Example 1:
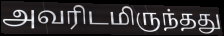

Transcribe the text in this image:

அவரிடமிருந்தது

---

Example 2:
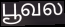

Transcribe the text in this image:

பூவல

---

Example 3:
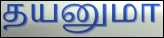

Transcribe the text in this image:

தயனுமா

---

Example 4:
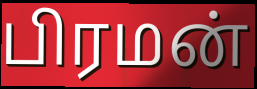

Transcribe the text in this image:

பிரமன்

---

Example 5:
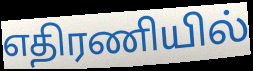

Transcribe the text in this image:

எதிரணியில்